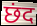
छंद